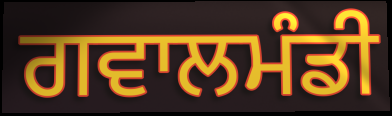
ਗਵਾਲਮੰਡੀ